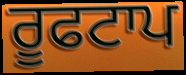
ਰੂਫਟਾਪ